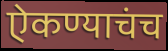
ऐकण्याचंच